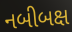
નબીબક્ષ